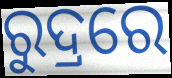
ରୁଦ୍ରରେ